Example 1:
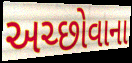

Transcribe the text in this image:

અચ્છોવાના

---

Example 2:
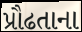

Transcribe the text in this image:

પ્રૌઢતાના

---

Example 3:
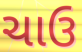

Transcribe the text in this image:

ચાઉ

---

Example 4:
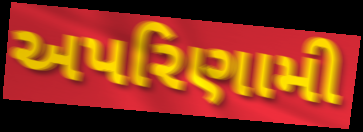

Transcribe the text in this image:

અપરિણામી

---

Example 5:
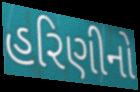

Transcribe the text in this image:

હરિણીનો